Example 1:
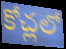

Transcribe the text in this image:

కోచ్లలో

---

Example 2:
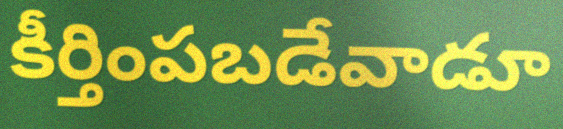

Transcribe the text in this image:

కీర్తింపబడేవాడూ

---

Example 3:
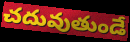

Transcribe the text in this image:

చదువుతుండే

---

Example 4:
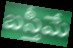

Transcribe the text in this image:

బస్తీమే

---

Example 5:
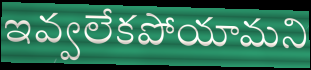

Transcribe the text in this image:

ఇవ్వలేకపోయామని